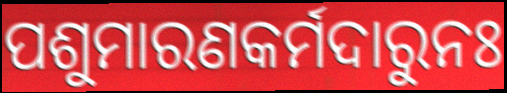
ପଶୁମାରଣକର୍ମଦାରୁନଃ